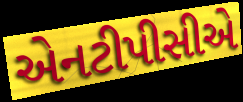
એનટીપીસીએ